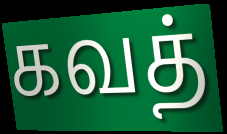
கவத்